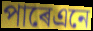
পাৰেএনে